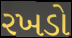
રખડો